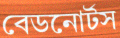
বেডনোর্টস